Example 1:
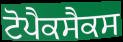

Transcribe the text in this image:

ਟੋਪੈਕਸੈਕਸ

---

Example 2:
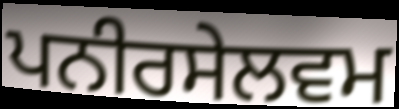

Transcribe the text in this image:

ਪਨੀਰਸੇਲਵਮ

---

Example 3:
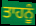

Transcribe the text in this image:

ਤਾਹਨੂੰ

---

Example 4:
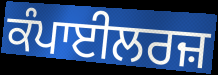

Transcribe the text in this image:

ਕੰਪਾਈਲਰਜ਼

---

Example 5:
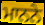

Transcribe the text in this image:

ਮਾਨਨੇ